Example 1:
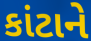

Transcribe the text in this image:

કાંટાને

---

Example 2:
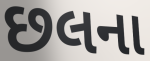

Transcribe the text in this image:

છલના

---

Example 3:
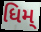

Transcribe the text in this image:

ધિમ્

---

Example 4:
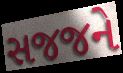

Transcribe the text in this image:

સજજને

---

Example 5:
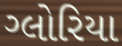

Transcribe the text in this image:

ગ્લોરિયા